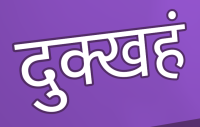
दुक्खहं